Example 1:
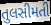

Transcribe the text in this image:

તુલસીમતી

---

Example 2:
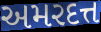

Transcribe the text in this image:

અમરદત્ત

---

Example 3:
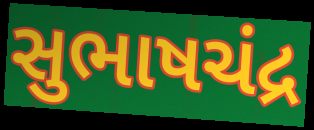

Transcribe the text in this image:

સુભાષચંદ્ર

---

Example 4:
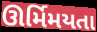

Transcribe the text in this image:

ઊર્મિમયતા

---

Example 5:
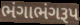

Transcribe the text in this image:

ભંગાભંગરૂપ